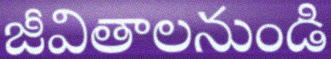
జీవితాలనుండి